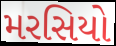
મરસિયો